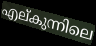
എല്കുന്നിലെ